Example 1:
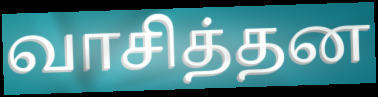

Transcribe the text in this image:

வாசித்தன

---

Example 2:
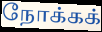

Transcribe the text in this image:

நோக்கக்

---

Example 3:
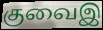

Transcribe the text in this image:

குவைஇ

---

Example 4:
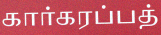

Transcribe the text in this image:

கார்கரப்பத்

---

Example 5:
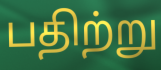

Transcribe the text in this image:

பதிற்று